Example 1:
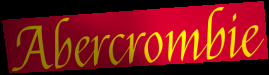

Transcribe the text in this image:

Abercrombie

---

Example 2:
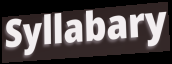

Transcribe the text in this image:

Syllabary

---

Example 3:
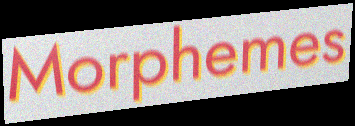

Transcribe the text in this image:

Morphemes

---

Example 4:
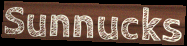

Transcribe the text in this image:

Sunnucks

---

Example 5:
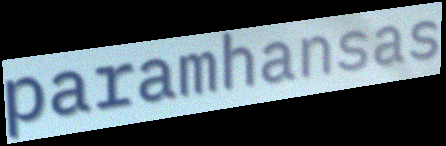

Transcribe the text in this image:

paramhansas